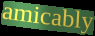
amicably